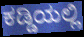
ಕಡ್ಡಿಯಲ್ಲಿ